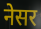
नेसर